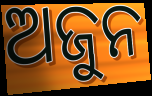
ଅଜୁନ